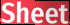
Sheet